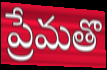
ప్రేమతొ